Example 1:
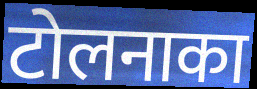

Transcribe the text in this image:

टोलनाका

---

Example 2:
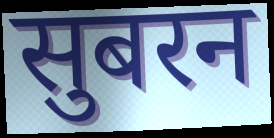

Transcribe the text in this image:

सुबरन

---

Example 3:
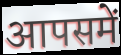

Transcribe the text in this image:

आपसमें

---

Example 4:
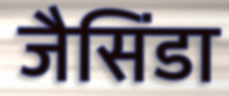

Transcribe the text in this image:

जैसिंडा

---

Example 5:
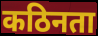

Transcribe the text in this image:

कठिनता